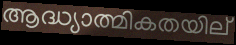
ആദ്ധ്യാത്മികതയില്